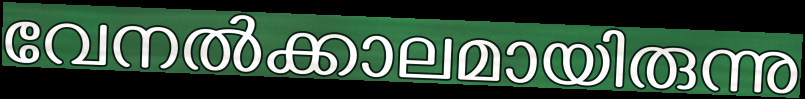
വേനൽക്കാലമായിരുന്നു